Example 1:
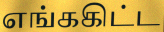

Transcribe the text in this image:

எங்ககிட்ட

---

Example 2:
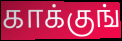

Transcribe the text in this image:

காக்குங்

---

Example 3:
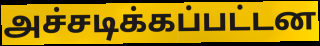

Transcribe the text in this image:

அச்சடிக்கப்பட்டன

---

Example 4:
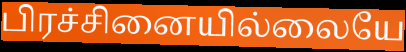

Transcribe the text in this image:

பிரச்சினையில்லையே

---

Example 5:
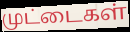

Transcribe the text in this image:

முட்டைகள்